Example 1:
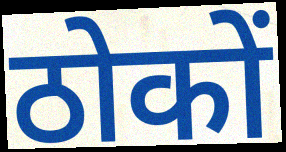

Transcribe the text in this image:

ठोकों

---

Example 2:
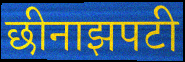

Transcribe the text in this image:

छीनाझपटी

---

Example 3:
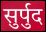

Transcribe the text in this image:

सुर्पुद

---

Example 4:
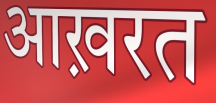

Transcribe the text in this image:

आख़रत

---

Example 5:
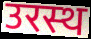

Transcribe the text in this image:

उरस्थ